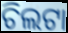
ଚିଲଟା